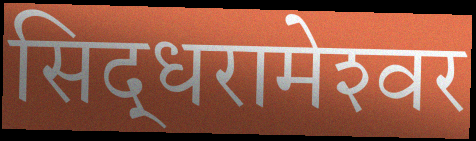
सिद्धरामेश्वर